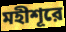
মহীশূরে